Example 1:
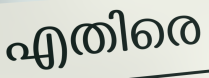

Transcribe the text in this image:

എതിരെ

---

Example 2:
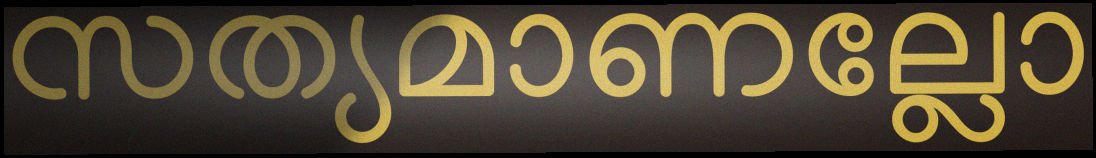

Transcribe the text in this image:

സത്യമാണല്ലോ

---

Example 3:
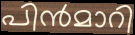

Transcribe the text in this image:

പിൻമാറി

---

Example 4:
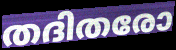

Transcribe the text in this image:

തദിതരോ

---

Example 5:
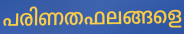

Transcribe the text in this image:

പരിണതഫലങ്ങളെ